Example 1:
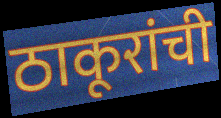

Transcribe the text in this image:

ठाकूरांची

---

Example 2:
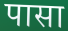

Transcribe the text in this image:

पासा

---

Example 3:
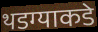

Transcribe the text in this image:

थडग्याकडे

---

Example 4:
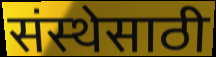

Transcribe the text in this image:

संस्थेसाठी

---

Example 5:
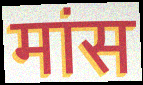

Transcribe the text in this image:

मांस